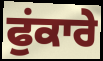
ਫੁਂਕਾਰੇ